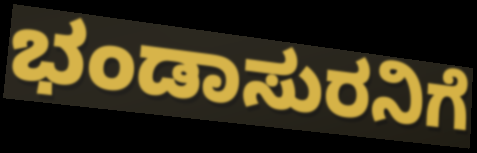
ಭಂಡಾಸುರನಿಗೆ